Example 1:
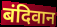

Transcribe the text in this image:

बंदिवान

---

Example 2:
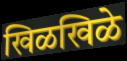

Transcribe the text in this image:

खिळखिळे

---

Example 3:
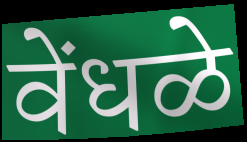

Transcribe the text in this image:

वेंधळे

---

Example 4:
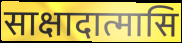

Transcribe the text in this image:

साक्षादात्मासि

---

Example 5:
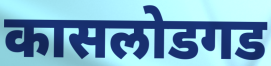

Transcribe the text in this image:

कासलोडगड